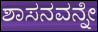
ಶಾಸನವನ್ನೇ